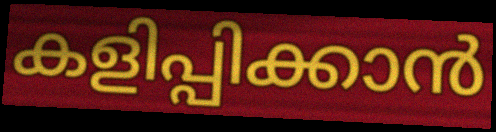
കളിപ്പിക്കാൻ